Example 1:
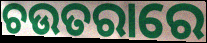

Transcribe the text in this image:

ଚଉତରାରେ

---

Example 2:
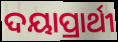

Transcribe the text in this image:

ଦୟାପ୍ରାର୍ଥୀ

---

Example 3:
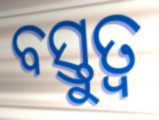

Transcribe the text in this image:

ବସ୍ତୁତ୍ବ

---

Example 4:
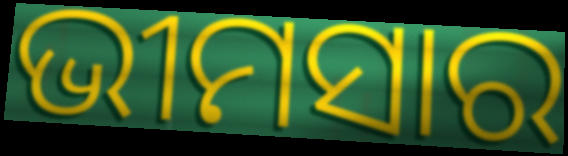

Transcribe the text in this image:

ଭୀମସାର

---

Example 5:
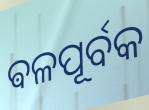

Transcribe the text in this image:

ଵଳପୂର୍ବକ